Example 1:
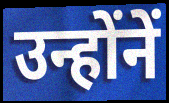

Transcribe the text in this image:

उन्होंनें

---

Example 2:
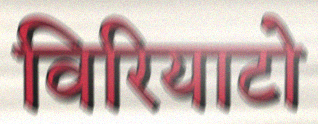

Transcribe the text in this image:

विरियाटो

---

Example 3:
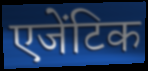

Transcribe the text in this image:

एजेंटिक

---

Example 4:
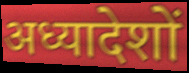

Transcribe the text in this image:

अध्यादेशों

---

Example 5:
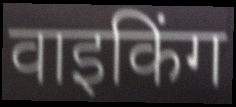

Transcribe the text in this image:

वाइकिंग